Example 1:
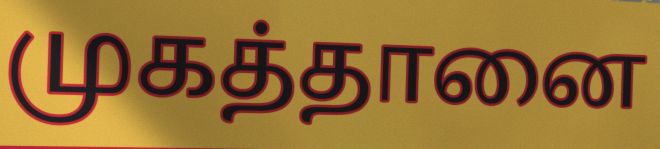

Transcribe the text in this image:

முகத்தானை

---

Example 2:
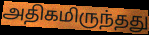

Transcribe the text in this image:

அதிகமிருந்தது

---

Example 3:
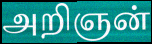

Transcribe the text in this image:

அறிஞன்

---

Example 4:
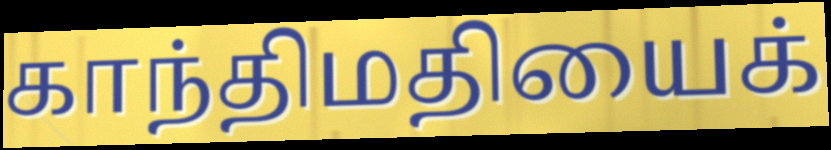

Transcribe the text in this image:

காந்திமதியைக்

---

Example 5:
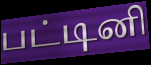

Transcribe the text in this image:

பட்டினி